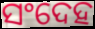
ସଂଦେହ